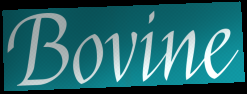
Bovine